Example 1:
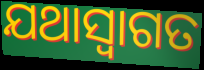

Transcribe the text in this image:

ଯଥାସ୍ଵାଗତ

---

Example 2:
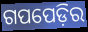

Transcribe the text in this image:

ଗପପେଡ଼ିର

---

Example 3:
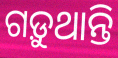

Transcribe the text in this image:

ଗଡ଼ୁଥାନ୍ତି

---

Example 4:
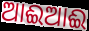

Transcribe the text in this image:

ଆଈଆଈ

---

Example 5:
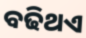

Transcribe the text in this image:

ବଢିଥଏ